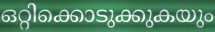
ഒറ്റിക്കൊടുക്കുകയും